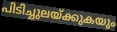
പിടിച്ചുലയ്ക്കുകയും